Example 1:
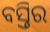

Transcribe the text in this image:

ବସ୍ତିର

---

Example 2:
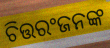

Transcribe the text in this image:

ଚିତ୍ତରଂଜନଙ୍କ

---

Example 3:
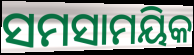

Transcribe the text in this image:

ସମସାମୟିକ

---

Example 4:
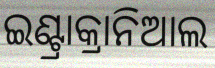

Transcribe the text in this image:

ଇଣ୍ଟ୍ରାକ୍ରାନିଆଲ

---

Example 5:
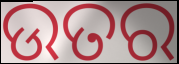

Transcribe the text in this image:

ଉତର